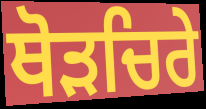
ਥੋੜਚਿਰੇ